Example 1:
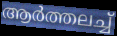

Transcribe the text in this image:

ആർത്തലച്ച്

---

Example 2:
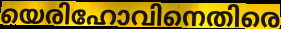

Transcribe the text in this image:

യെരിഹോവിനെതിരെ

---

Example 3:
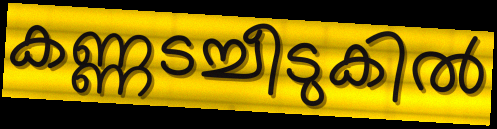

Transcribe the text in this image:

കണ്ണടച്ചീടുകിൽ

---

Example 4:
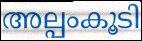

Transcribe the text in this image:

അല്പംകൂടി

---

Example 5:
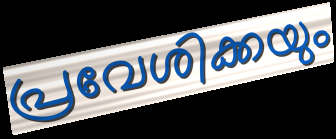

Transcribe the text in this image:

പ്രവേശിക്കയും